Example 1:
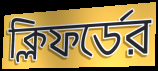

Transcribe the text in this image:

ক্লিফর্ডের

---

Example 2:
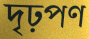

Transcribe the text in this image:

দৃঢ়পণ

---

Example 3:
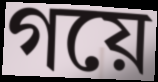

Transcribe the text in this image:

গয়ে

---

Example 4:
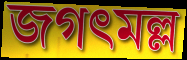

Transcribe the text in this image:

জগৎমল্ল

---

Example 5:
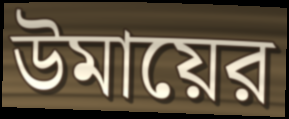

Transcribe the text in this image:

উমায়ের